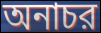
অনাচর